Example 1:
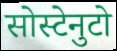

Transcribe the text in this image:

सोस्टेनुटो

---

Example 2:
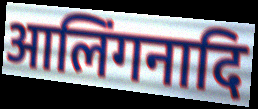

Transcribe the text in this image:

आलिंगनादि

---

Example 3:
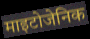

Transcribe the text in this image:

माइटोजेनिक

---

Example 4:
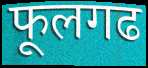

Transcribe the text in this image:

फूलगढ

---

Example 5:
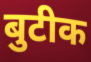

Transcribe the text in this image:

बुटीक